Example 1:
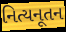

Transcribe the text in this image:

નિત્યનૂતન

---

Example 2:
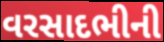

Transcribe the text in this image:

વરસાદભીની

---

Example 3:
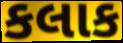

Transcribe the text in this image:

કલાક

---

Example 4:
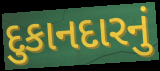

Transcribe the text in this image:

દુકાનદારનું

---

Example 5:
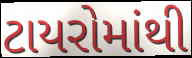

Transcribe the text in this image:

ટાયરોમાંથી